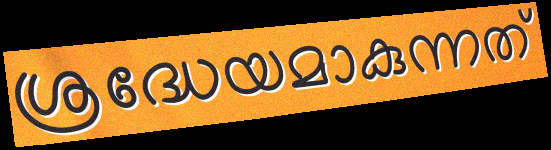
ശ്രദ്ധേയമാകുന്നത്